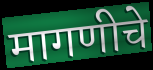
मागणीचे